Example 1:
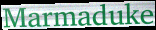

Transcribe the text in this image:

Marmaduke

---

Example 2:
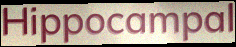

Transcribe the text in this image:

Hippocampal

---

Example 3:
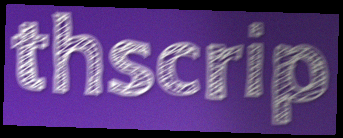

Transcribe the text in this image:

thscrip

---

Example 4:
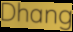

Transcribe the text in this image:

Dhang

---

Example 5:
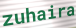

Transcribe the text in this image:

zuhaira